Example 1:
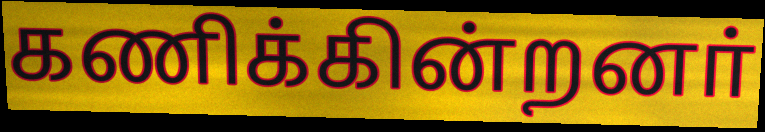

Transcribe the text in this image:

கணிக்கின்றனர்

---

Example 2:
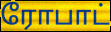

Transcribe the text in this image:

ரோபாட்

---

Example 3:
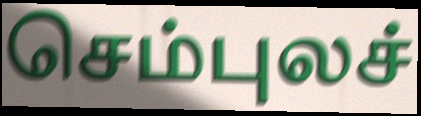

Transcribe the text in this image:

செம்புலச்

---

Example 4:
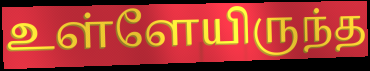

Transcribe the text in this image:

உள்ளேயிருந்த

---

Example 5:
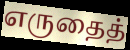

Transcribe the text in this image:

எருதைத்